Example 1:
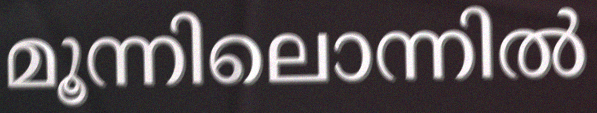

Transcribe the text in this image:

മൂന്നിലൊന്നിൽ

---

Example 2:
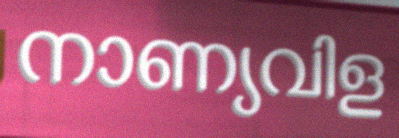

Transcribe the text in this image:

നാണ്യവിള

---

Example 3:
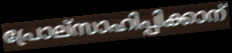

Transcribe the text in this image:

പ്രോല്സാഹിപ്പിക്കാന്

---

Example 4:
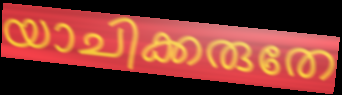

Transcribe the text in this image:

യാചിക്കരുതേ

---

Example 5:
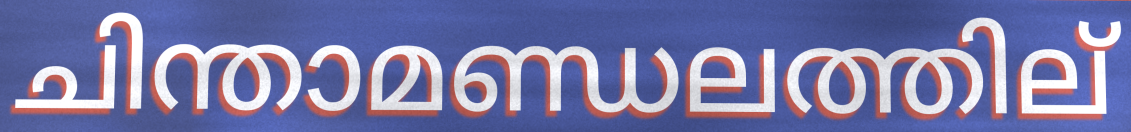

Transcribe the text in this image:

ചിന്താമണ്ഡലത്തില്